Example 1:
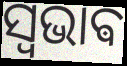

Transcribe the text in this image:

ସ୍ଵଭାଵ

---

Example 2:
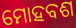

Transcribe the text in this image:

ମୋହବଶ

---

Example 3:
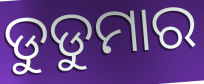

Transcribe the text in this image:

ଡୁଡୁମାର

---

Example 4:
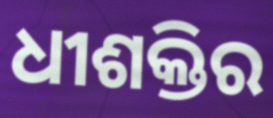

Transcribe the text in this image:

ଧୀଶକ୍ତିର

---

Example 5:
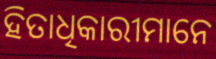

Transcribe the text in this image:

ହିତାଧିକାରୀମାନେ